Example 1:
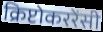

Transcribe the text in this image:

क्रिप्टोकररेंसी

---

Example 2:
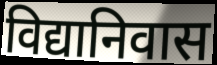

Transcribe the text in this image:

विद्यानिवास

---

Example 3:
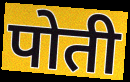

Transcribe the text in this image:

पोती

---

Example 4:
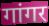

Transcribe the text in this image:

गांगर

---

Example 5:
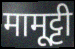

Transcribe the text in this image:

मामूट्टी